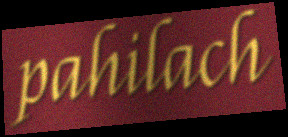
pahilach